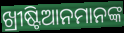
ଖ୍ରୀଷ୍ଟିଆନମାନଙ୍କ